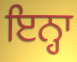
ਇਨ੍ਹਾ